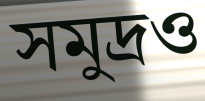
সমুদ্রও